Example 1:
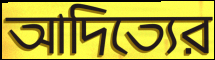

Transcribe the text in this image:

আদিত্যের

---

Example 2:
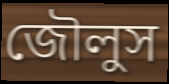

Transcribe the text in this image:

জৌলুস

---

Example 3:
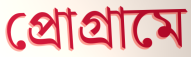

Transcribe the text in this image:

প্রোগ্রামে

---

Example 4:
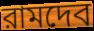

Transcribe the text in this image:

রামদেব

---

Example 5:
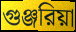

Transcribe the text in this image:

গুঞ্জরিয়া